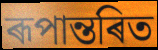
ৰূপান্তৰিত